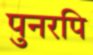
पुनरपि